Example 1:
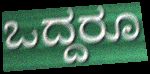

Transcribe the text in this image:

ಒದ್ದರೂ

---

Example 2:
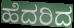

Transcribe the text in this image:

ಹೆದರಿದ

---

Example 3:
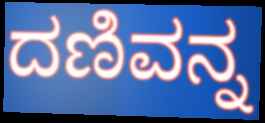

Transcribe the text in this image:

ದಣಿವನ್ನ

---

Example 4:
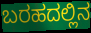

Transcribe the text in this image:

ಬರಹದಲ್ಲಿನ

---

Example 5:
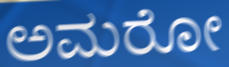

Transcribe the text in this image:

ಅಮರೋ